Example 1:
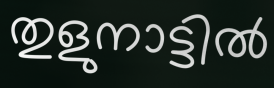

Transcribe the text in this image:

തുളുനാട്ടിൽ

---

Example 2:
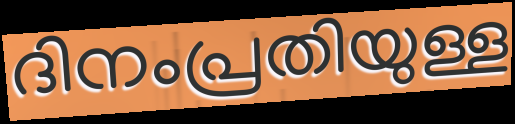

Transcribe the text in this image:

ദിനംപ്രതിയുള്ള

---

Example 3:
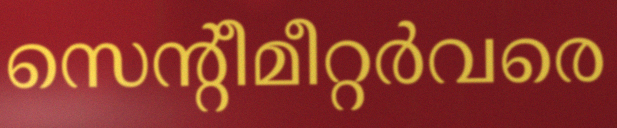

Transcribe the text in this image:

സെന്റീമീറ്റർവരെ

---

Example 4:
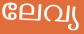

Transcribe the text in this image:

ലേവ്യ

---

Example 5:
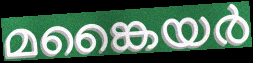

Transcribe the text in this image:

മങ്കൈയർ